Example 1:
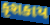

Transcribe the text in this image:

કૃશકાય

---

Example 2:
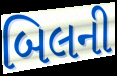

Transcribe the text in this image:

બિલની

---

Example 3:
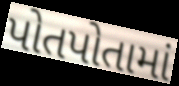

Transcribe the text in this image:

પોતપોતામાં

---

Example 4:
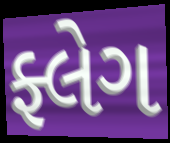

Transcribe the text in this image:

ફ્લેગ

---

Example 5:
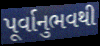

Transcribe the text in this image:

પૂર્વાનુભવથી